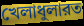
খেলাধুলারত